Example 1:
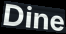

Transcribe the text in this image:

Dine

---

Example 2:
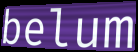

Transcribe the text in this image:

belum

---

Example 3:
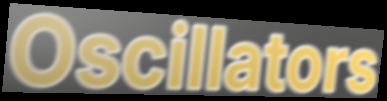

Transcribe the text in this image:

Oscillators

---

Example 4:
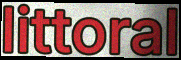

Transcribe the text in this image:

littoral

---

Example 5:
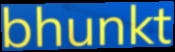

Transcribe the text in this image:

bhunkt